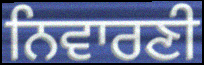
ਨਿਵਾਰਣੀ